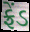
ફ્રેંડ